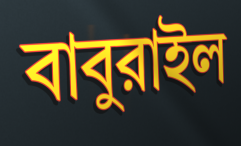
বাবুরাইল